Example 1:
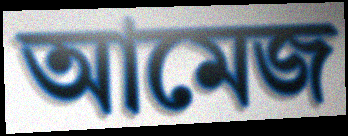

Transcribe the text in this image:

আমেজ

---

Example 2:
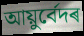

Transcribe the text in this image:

আয়ুৰ্বেদৰ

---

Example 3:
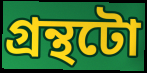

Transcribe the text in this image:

গ্ৰন্থটো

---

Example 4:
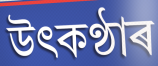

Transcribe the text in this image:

উৎকণ্ঠাৰ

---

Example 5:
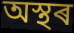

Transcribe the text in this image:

অস্থৰ